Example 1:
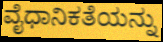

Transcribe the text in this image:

ವೈಧಾನಿಕತೆಯನ್ನು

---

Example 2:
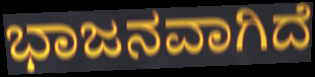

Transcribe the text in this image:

ಭಾಜನವಾಗಿದೆ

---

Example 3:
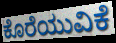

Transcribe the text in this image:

ಕೊರೆಯುವಿಕೆ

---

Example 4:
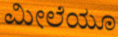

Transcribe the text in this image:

ಮೀಲೆಯೂ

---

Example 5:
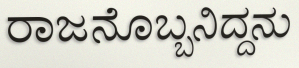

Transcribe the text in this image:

ರಾಜನೊಬ್ಬನಿದ್ದನು